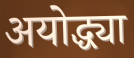
अयोद्ध्या